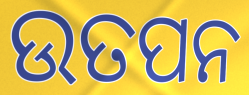
ଉତପନ